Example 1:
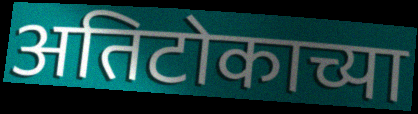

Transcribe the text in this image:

अतिटोकाच्या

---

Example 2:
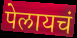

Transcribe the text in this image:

पेलायचं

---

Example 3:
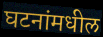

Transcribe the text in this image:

घटनांमधील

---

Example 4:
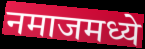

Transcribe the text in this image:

नमाजमध्ये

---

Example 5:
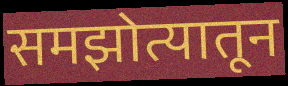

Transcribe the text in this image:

समझोत्यातून